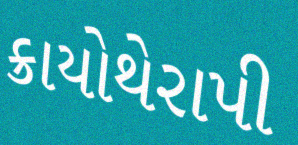
ક્રાયોથેરાપી